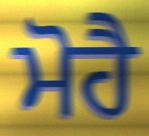
ਮੋਹੈ